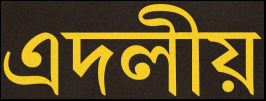
এদলীয়